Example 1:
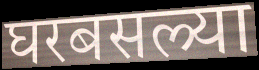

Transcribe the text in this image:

घरबसल्या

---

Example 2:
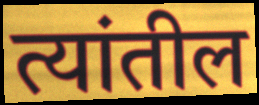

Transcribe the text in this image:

त्यांतील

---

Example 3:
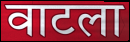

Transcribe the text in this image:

वाटला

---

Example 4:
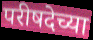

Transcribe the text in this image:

परीषदेच्या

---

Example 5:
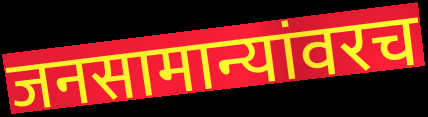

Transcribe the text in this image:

जनसामान्यांवरच